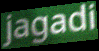
jagadi